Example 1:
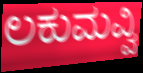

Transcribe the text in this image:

ಲಕುಮವ್ವಿ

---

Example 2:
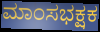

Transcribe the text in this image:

ಮಾಂಸಭಕ್ಷಕ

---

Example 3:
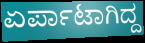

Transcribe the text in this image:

ಏರ್ಪಾಟಾಗಿದ್ದ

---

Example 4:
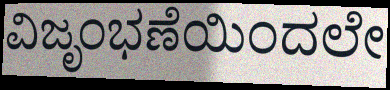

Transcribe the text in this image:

ವಿಜೃಂಭಣೆಯಿಂದಲೇ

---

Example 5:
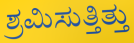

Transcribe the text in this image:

ಶ್ರಮಿಸುತ್ತಿತ್ತು